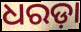
ଧରଡ଼ା